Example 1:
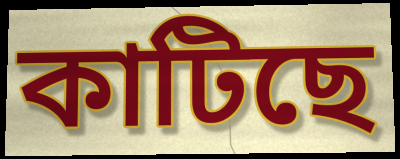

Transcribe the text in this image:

কাটিছে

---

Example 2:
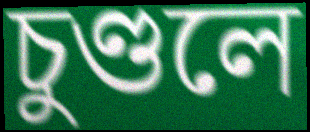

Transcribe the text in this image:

চুণ্ডলে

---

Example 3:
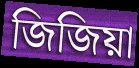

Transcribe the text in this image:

জিজিয়া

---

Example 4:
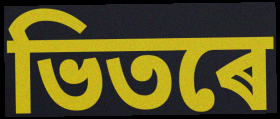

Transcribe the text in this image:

ভিতৰে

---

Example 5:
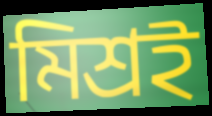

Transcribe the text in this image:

মিশ্ৰই